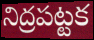
నిద్రపట్టక